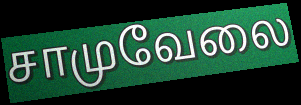
சாமுவேலை